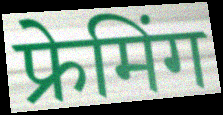
फ्रेमिंग